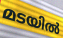
മടയിൽ